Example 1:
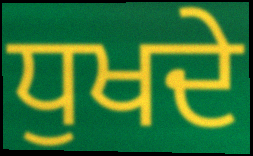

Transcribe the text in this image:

ਧੁਖਦੇ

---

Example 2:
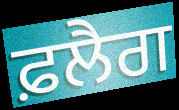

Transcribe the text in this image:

ਫ਼ਲੈਗ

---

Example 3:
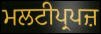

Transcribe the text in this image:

ਮਲਟੀਪ੍ਰਪਜ਼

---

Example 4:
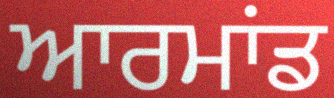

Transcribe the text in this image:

ਆਰਮਾਂਡ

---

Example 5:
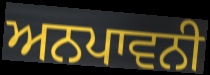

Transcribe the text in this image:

ਅਨਪਾਵਨੀ